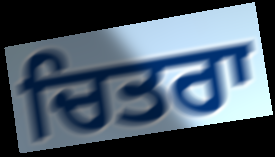
ਚਿਤਰਾ